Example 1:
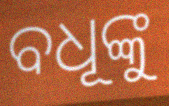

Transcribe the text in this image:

ବଧୂଙ୍କୁ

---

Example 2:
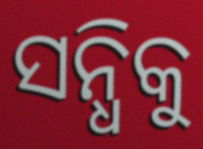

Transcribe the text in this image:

ସନ୍ଧିକୁ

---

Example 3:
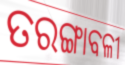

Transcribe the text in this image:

ତରଙ୍ଗାବଳୀ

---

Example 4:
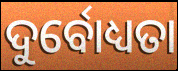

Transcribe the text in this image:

ଦୁର୍ବୋଧ୍ୟତା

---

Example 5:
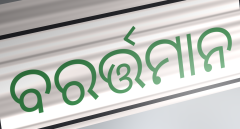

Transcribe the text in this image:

ବରର୍ତ୍ତମାନ